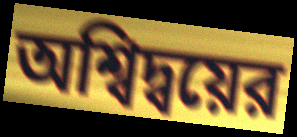
অশ্বিদ্বয়ের